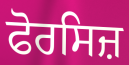
ਫੋਰਸਿਜ਼